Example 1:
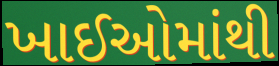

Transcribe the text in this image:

ખાઈઓમાંથી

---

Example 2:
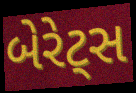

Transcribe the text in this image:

બેરેટ્સ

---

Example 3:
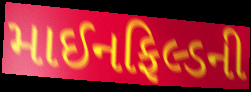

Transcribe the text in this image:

માઈનફિલ્ડની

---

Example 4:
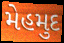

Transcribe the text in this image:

મેહમુદ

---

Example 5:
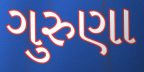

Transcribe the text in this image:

ગુરુણા